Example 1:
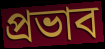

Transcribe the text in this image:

প্ৰভাব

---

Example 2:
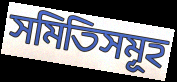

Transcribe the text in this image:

সমিতিসমূহ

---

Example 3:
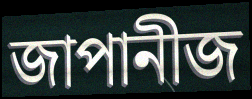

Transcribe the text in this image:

জাপানীজ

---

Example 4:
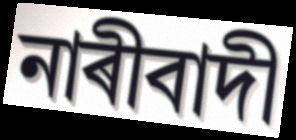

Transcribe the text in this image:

নাৰীবাদী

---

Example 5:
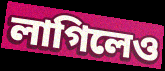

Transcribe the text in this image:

লাগিলেও